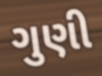
ગુણી